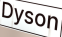
Dyson